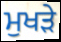
ਮੁਖੜੇ